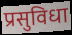
प्रसुविधा